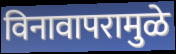
विनावापरामुळे